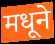
मधूने